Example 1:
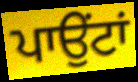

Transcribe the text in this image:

ਪਾਉਂਟਾਂ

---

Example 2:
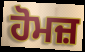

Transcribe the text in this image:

ਹੋਮਜ਼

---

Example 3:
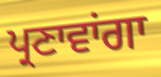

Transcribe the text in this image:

ਪ੍ਰਣਾਵਾਂਗਾ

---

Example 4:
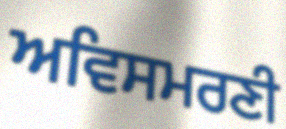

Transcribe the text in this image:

ਅਵਿਸਮਰਣੀ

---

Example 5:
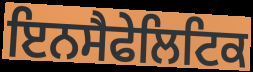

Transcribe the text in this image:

ਇਨਸੈਫੇਲਿਟਿਕ